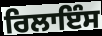
ਰਿਲਾਇੰਸ